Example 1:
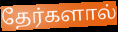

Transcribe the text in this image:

தேர்களால்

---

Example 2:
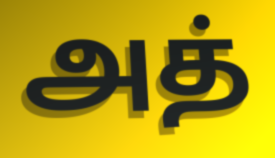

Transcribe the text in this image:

அத்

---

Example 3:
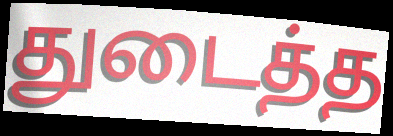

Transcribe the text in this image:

துடைத்த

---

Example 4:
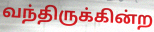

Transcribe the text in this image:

வந்திருக்கின்ற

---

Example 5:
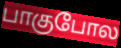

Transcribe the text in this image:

பாகுபோல